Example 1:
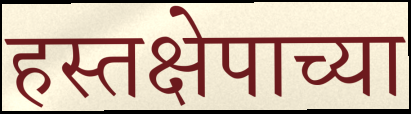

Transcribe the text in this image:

हस्तक्षेपाच्या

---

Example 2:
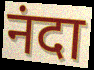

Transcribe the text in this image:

नंदा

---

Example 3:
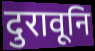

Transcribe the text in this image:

दुरावूनि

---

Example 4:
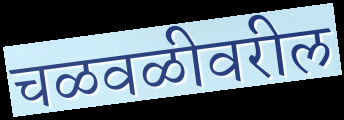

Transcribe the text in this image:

चळवळीवरील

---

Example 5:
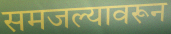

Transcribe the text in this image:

समजल्यावरून